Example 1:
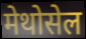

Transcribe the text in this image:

मेथोसेल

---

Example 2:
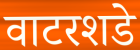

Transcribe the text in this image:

वाटरशडे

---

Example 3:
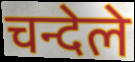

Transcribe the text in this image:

चन्देले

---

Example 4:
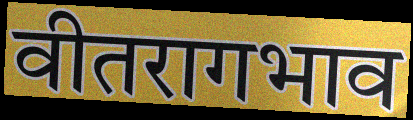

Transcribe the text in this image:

वीतरागभाव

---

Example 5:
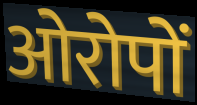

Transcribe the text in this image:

ओरोपों